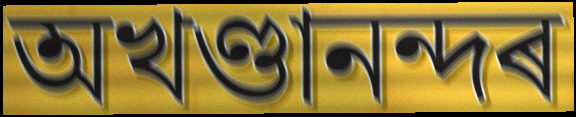
অখণ্ডানন্দৰ